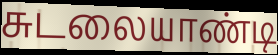
சுடலையாண்டி